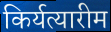
किर्यत्यारीम